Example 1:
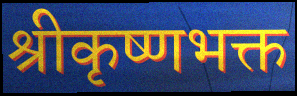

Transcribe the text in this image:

श्रीकृष्णभक्त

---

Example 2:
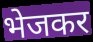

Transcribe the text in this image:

भेजकर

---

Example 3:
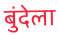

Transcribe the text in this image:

बुंदेला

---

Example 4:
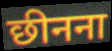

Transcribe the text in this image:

छीनना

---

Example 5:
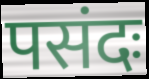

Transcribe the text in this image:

पसंदः